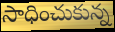
సాధించుకున్న